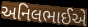
અનિલભાઈએ